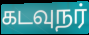
கடவுநர்